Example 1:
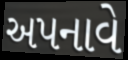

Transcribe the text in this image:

અપનાવે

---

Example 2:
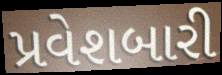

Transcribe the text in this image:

પ્રવેશબારી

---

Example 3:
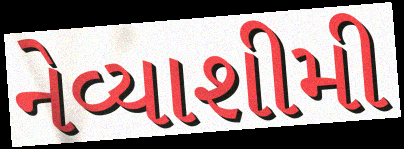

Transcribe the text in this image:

નેવ્યાશીમી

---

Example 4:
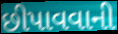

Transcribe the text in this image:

છીપાવવાની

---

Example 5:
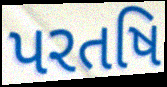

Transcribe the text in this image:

પરતષિ